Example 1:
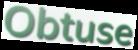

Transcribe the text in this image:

Obtuse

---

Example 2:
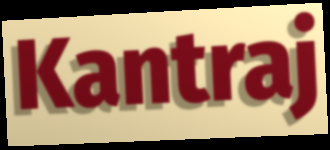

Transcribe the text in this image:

Kantraj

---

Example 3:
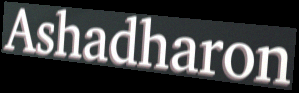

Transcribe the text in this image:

Ashadharon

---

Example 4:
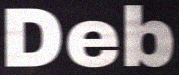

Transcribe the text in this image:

Deb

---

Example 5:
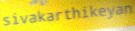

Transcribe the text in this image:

sivakarthikeyan